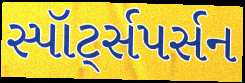
સ્પૉર્ટ્સપર્સન